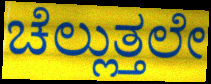
ಚೆಲ್ಲುತ್ತಲೇ